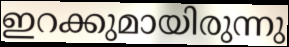
ഇറക്കുമായിരുന്നു